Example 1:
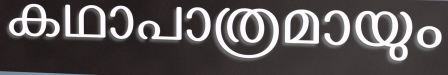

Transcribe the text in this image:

കഥാപാത്രമായും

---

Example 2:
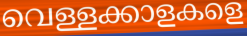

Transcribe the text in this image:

വെള്ളക്കാളകളെ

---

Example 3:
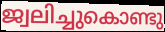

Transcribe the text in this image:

ജ്വലിച്ചുകൊണ്ടു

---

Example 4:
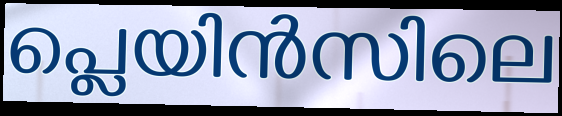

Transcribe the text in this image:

പ്ലെയിൻസിലെ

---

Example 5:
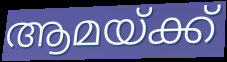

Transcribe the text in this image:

ആമയ്ക്ക്